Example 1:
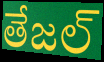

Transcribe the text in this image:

తేజల్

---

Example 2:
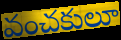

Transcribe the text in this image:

వంచకులూ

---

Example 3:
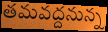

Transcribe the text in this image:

తమవద్దనున్న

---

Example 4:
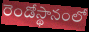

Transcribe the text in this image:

రెండోస్థానంలో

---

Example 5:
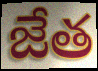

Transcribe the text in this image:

జేత